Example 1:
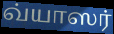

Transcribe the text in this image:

வ்யாஸர்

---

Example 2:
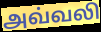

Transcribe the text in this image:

அவ்வலி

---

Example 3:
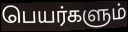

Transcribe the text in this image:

பெயர்களும்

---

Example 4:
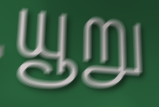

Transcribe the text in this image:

யூறு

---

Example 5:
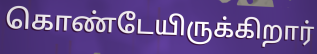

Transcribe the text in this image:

கொண்டேயிருக்கிறார்